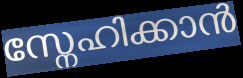
സ്നേഹിക്കാൻ